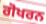
ਗੋਖਰਨ